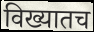
विख्यातच